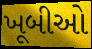
ખૂબીઓ